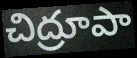
చిద్రూపా